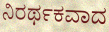
ನಿರರ್ಥಕವಾದ